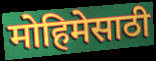
मोहिमेसाठी